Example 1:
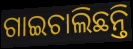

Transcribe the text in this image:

ଗାଇଚାଲିଛନ୍ତି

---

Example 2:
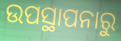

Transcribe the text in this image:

ଉପସ୍ଥାପନାରୁ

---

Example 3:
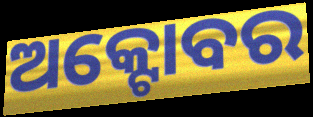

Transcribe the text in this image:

ଅକ୍ଟୋବର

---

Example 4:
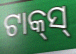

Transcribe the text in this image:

ଟାକ୍‍ସ୍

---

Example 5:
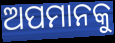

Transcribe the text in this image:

ଅପମାନକୁ